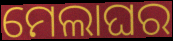
ମେଲାଘର